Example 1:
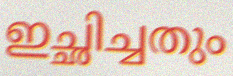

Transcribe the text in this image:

ഇച്ഛിച്ചതും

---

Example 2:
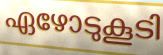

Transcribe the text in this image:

ഏഴോടുകൂടി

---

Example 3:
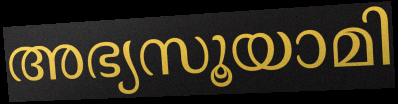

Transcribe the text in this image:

അഭ്യസൂയാമി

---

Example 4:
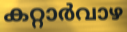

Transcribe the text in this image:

കറ്റാർവാഴ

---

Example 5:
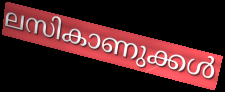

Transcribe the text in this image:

ലസികാണുക്കൾ